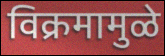
विक्रमामुळे